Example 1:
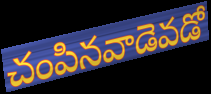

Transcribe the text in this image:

చంపినవాడెవడో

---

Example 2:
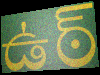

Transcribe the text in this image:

ఉఠ్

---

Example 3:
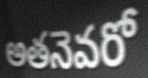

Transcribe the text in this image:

అతనెవరో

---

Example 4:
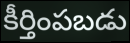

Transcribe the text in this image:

కీర్తింపబడు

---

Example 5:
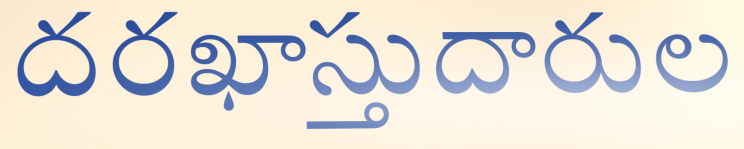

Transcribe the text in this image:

దరఖాస్తుదారుల